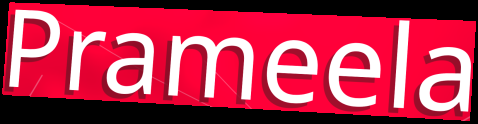
Prameela